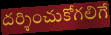
దర్శించుకోగలిగే